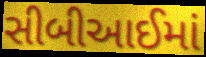
સીબીઆઈમાં